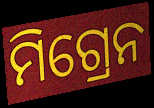
ମିଗ୍ରେନ